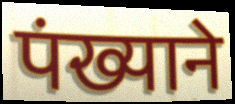
पंख्याने